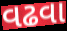
વઢવા